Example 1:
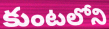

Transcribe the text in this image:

కుంటలోని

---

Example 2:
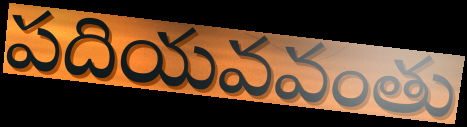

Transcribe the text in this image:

పదియవవంతు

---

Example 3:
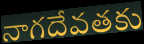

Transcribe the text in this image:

నాగదేవతకు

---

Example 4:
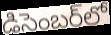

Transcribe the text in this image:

డిసెంబర్‌లో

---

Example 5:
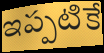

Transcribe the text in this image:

ఇప్పటికే